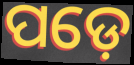
ପଡ଼େ